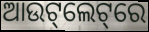
ଆଉଟ୍‌ଲେଟ୍‌ରେ